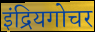
इंद्रियगोचर